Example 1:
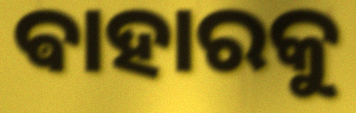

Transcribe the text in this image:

ଵାହାରକୁ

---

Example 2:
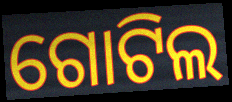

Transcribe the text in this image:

ଗୋଟିଲ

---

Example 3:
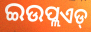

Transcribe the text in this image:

ଇଉପ୍ଲଏଡ୍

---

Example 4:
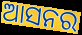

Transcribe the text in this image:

ଆସନର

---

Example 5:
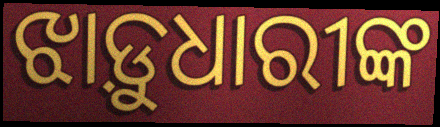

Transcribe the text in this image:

ଝାଡ଼ୁଧାରୀଙ୍କ